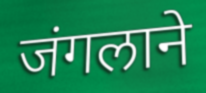
जंगलाने